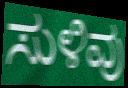
ಸುಳಿವು